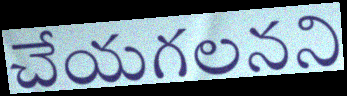
చేయగలనని